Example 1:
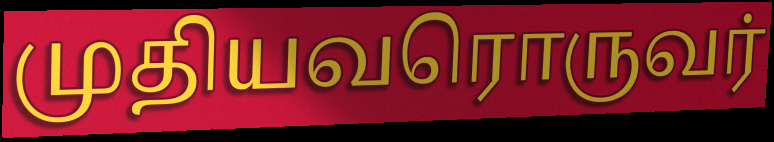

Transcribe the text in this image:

முதியவரொருவர்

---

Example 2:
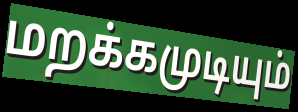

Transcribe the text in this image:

மறக்கமுடியும்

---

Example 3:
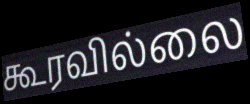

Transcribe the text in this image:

கூரவில்லை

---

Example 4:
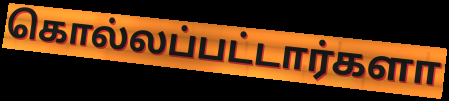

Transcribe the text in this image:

கொல்லப்பட்டார்களா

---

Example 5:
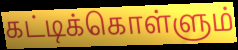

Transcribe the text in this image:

கட்டிக்கொள்ளும்